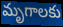
మృగాలకు